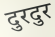
दुरदुर